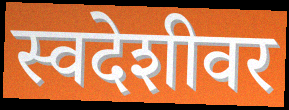
स्वदेशीवर